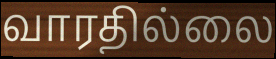
வாரதில்லை